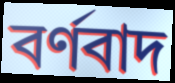
বৰ্ণবাদ